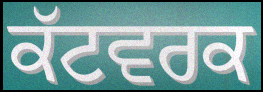
ਕੱਟਵਰਕ